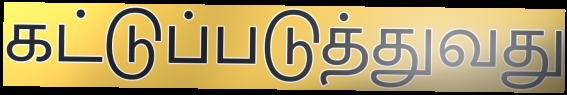
கட்டுப்படுத்துவது